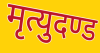
मृत्युदण्ड